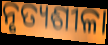
ନୃତ୍ୟଶୀଳା